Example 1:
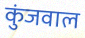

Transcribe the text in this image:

कुंजवाल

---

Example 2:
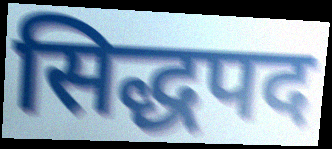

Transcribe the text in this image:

सिद्धपद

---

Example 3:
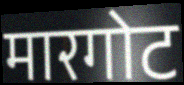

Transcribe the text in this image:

मारगोट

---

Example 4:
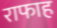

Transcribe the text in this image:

राफाह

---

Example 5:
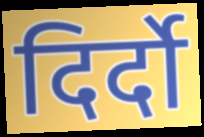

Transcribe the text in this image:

दिर्दो